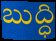
బుద్ధి